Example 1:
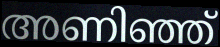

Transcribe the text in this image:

അണിഞ്ഞ്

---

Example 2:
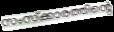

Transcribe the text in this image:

സംസ്‌ക്കാരത്തിന്റെ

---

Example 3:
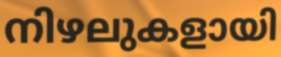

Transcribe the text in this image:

നിഴലുകളായി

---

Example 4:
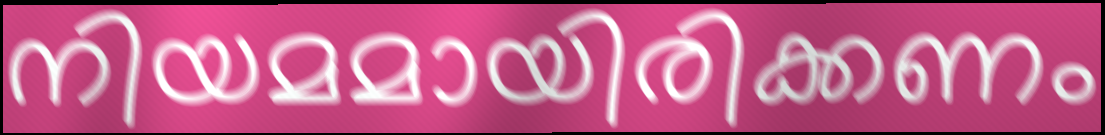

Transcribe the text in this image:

നിയമമായിരിക്കണം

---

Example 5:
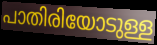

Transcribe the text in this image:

പാതിരിയോടുള്ള